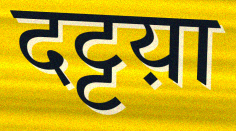
दट्टय़ा